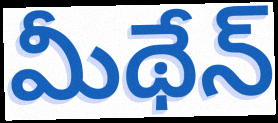
మీథేన్